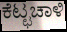
ಕೆಟ್ಟಚಾಳಿ